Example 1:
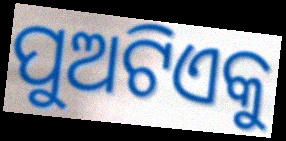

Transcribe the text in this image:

ପୁଅଟିଏକୁ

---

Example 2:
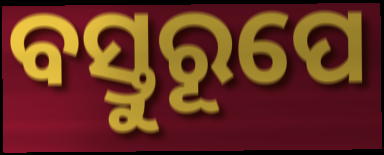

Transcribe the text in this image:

ବସ୍ତୁରୂପେ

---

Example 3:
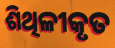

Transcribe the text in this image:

ଶିଥିଳୀକୃତ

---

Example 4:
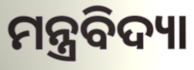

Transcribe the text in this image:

ମନ୍ତ୍ରବିଦ୍ୟା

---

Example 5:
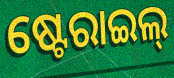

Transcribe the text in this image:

ଷ୍ଟେରାଇଲ୍